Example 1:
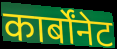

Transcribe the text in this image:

कार्बोंनेट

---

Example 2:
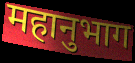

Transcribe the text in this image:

महानुभाग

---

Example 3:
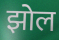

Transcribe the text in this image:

झोल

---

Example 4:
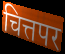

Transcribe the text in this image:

चित्तपर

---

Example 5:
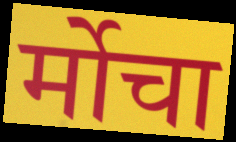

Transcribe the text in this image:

र्मोचा